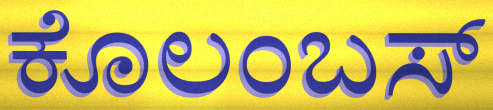
ಕೊಲಂಬಸ್